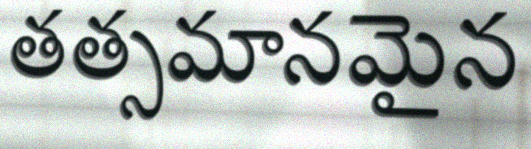
తత్సమానమైన